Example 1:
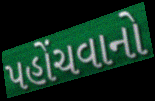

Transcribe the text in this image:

પહોંચવાનો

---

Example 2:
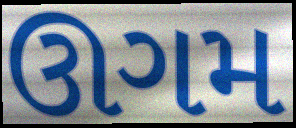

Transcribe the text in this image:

ઊગમ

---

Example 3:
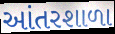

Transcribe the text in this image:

આંતરશાળા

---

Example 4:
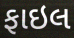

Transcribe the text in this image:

ફાઇલ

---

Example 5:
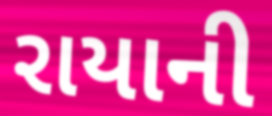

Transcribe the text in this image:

રાયાની